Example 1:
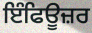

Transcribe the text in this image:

ਇੰਫਿਊਜ਼ਰ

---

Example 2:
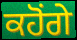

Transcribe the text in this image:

ਕਹੋਂਗੇ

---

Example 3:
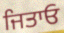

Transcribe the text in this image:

ਜਿਤਾਓ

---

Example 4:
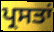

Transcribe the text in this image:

ਪ੍ਰਸਤਾਂ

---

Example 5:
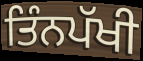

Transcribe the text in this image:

ਤਿੰਨਪੱਖੀ